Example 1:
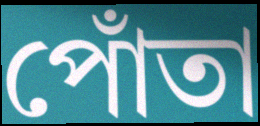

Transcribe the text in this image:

পোঁতা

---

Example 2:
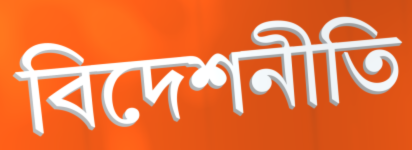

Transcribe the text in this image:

বিদেশনীতি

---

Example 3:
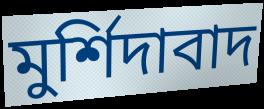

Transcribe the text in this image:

মুর্শিদাবাদ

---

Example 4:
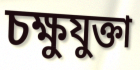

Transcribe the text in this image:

চক্ষুযুক্তা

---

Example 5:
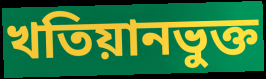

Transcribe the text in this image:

খতিয়ানভুক্ত